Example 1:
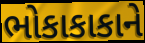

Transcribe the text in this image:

ભોકાકાકાને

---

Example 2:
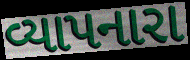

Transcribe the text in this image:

વ્યાપનારા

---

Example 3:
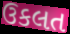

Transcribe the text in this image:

ઉકલત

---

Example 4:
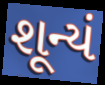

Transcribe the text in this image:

શૂન્યં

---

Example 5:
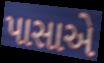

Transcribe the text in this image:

પાસાએ